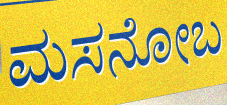
ಮಸನೋಬ